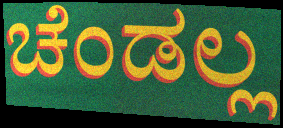
ಚೆಂಡಲ್ಲ